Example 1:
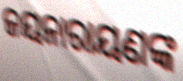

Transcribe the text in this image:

ଜୟନାରାୟଣଙ୍କ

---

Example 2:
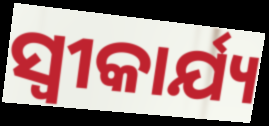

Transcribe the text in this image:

ସ୍ଵୀକାର୍ଯ୍ୟ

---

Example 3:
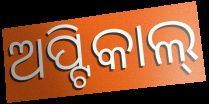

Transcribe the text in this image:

ଅପ୍ଟିକାଲ୍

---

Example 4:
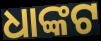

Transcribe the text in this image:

ଧାଙ୍କଟ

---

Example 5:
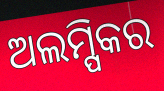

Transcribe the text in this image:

ଅଲମ୍ପିକର